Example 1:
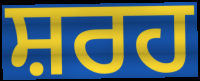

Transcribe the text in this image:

ਸ਼ਰਹ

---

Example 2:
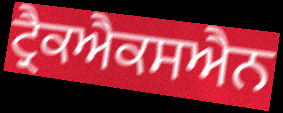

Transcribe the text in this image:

ਟ੍ਰੈਕਐਕਸਐਨ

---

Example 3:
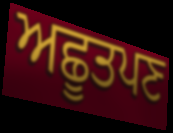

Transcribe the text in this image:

ਅਛੂਤਪਣ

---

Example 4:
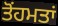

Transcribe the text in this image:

ਤੋਂਹਮਤਾਂ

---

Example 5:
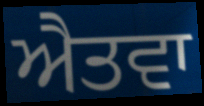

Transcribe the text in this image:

ਐਤਵਾ